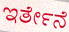
ಇರ್ತೇನೆ